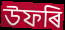
উফৰি